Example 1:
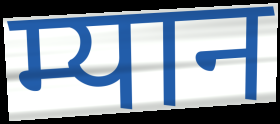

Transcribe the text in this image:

म्यान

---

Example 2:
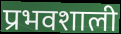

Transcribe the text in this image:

प्रभवशाली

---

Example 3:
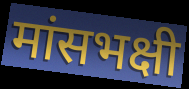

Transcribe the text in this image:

मांसभक्षी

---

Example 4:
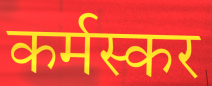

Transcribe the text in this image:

कर्मस्कर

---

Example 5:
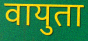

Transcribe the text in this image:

वायुता